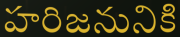
హరిజనునికి